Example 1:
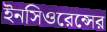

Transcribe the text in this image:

ইনসিওরেন্সের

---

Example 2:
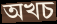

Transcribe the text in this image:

অখচ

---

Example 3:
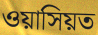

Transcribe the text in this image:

ওয়াসিয়ত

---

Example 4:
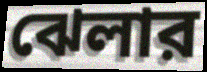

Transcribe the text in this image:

ঝেলার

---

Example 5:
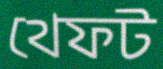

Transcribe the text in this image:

থেফট